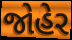
જોહેર